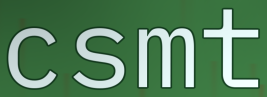
csmt